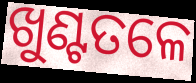
ଖୁଣ୍ଟତଳେ